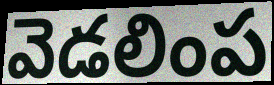
వెడలింప